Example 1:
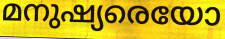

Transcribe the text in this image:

മനുഷ്യരെയോ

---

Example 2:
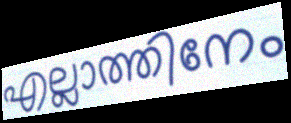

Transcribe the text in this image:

എല്ലാത്തിനേം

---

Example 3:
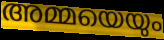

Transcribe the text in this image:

അമ്മയെയും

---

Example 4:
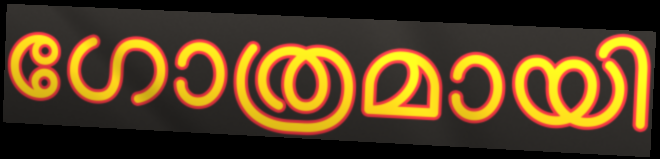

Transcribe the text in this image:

ഗോത്രമായി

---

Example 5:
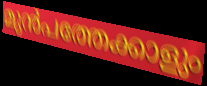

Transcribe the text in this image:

മുൻപത്തേക്കാളും